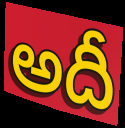
అదీ